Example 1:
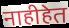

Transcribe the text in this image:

नाहीहेत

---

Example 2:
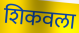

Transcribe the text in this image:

शिकवला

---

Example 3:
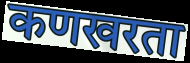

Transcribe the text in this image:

कणखरता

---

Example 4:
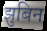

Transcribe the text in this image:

झुबिन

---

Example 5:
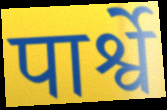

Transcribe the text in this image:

पार्श्वे